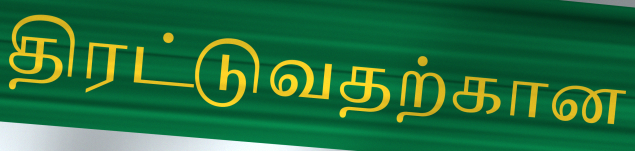
திரட்டுவதற்கான